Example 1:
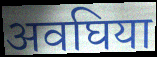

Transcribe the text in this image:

अवघिया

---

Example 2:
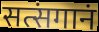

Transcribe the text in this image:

सत्संगानं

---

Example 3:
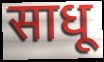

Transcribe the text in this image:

साधू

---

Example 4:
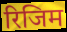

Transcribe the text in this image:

रिजिम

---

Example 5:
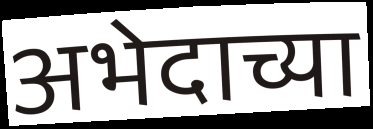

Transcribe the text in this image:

अभेदाच्या